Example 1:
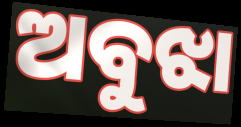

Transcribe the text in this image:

ଅବୁଝା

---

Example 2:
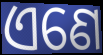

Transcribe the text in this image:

ଏଣେ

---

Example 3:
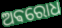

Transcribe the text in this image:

ଅଵରୋଧ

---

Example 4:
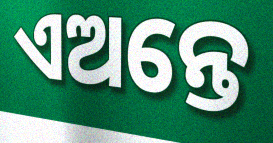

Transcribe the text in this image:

ଏଅନ୍ତେ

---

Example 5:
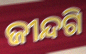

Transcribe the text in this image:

ଜୀନ୍ଦଗି